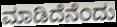
ಮಾಡಿದೆನೆಂದು